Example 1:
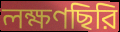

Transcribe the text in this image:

লক্ষণছিরি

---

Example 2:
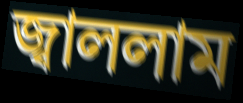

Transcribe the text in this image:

জ্বাললাম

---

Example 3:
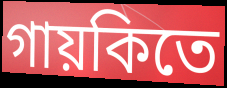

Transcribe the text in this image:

গায়কিতে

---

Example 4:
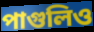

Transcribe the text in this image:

পাগুলিও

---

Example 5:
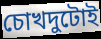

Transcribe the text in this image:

চোখদুটোই